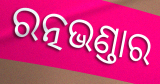
ରତ୍ନଭଣ୍ଡାର